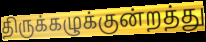
திருக்கழுக்குன்றத்து